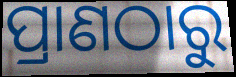
ପ୍ରାଣଠାରୁ